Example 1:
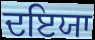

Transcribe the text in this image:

ਦਇਯਾ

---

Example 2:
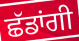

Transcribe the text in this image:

ਛੱਡਾਂਗੀ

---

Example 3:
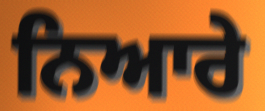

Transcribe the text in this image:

ਨਿਆਰੇ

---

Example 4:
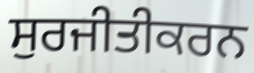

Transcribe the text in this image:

ਸੁਰਜੀਤੀਕਰਨ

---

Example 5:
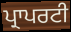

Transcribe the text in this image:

ਪ੍ਰਾਪਰਟੀ